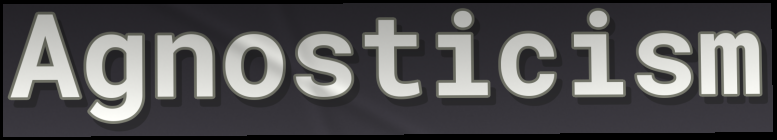
Agnosticism